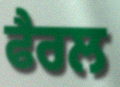
ਫੈਰਲ